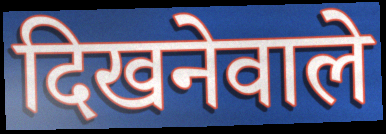
दिखनेवाले